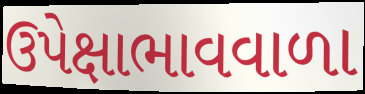
ઉપેક્ષાભાવવાળા